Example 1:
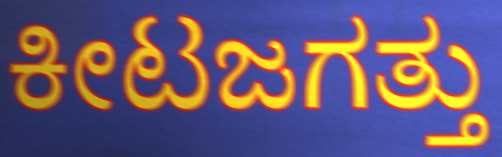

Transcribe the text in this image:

ಕೀಟಜಗತ್ತು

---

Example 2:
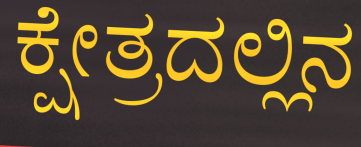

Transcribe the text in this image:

ಕ್ಷೇತ್ರದಲ್ಲಿನ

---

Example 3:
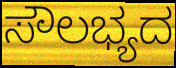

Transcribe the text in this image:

ಸೌಲಭ್ಯದ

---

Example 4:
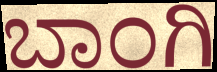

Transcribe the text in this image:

ಬಾಂಗಿ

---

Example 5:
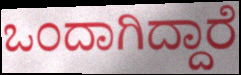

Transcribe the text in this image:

ಒಂದಾಗಿದ್ದಾರೆ